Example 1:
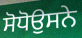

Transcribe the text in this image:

ਸੋਧੋਉਸਨੇ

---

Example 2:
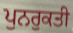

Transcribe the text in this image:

ਪੁਨਰੁਕਤੀ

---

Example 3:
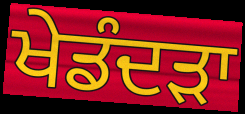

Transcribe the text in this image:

ਖੇਡੰਦੜਾ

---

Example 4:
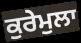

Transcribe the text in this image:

ਕੁਰੇਮੁਲਾ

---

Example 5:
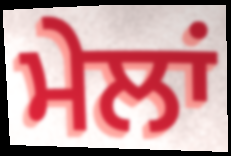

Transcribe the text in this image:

ਮੇਲਾਂ